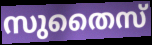
സുതൈസ്